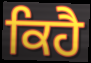
ਕਿਹੈ